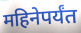
महिनेपर्यंत